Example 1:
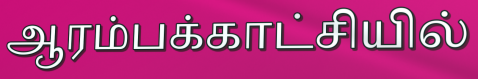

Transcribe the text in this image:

ஆரம்பக்காட்சியில்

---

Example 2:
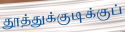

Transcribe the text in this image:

தூத்துக்குடிக்குப்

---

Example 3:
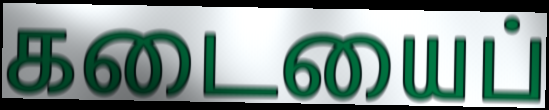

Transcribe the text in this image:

கடையைப்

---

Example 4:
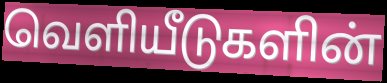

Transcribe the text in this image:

வெளியீடுகளின்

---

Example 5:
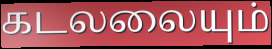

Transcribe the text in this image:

கடலலையும்